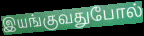
இயங்குவதுபோல்